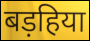
बड़हिया